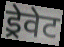
ड्रेवेट